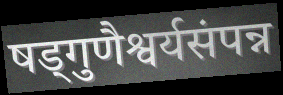
षड्‌गुणैश्वर्यसंपन्न